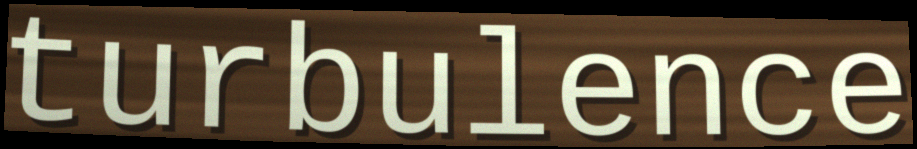
turbulence